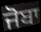
ਜੋਬਾ